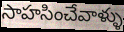
సాహసించేవాళ్ళు